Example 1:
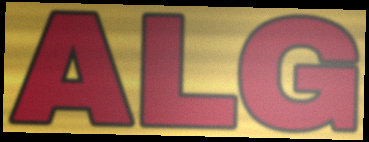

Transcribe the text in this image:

ALG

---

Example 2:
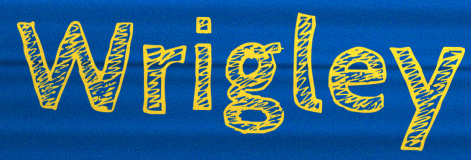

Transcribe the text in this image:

Wrigley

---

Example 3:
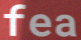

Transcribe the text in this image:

fea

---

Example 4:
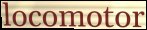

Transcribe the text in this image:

locomotor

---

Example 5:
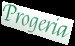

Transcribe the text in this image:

Progeria